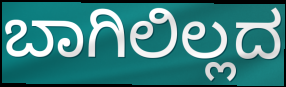
ಬಾಗಿಲಿಲ್ಲದ